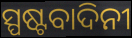
ସ୍ପଷ୍ଟବାଦିନୀ